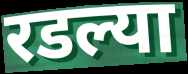
रडल्या